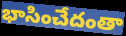
భాసించేదంతా